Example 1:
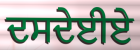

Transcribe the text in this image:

ਦਸਦੇਈਏ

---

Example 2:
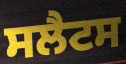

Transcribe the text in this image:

ਸਲੈਟਸ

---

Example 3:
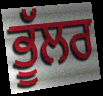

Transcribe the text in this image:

ਭੂੱਲਰ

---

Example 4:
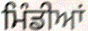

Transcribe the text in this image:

ਮਿੰਡੀਆਂ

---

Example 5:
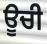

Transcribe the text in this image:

ਊਚੀ